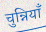
चुन्नियाँ